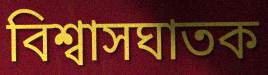
বিশ্বাসঘাতক